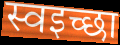
स्वइच्छा